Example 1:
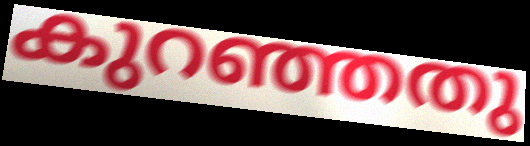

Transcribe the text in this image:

കുറഞ്ഞതു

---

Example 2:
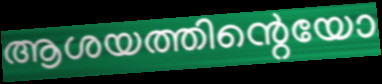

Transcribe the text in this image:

ആശയത്തിന്റെയോ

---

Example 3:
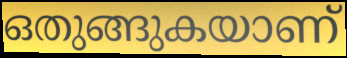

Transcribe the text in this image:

ഒതുങ്ങുകയാണ്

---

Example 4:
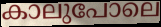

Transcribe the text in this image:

കാലുപോലെ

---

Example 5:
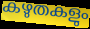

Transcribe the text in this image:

കഴുതകളും